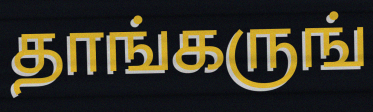
தாங்கருங்